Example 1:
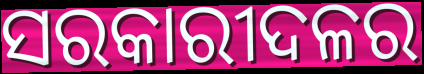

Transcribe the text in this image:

ସରକାରୀଦଳର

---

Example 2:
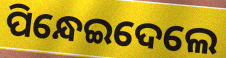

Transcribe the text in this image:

ପିନ୍ଧେଇଦେଲେ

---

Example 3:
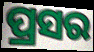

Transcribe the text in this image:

ପ୍ରସର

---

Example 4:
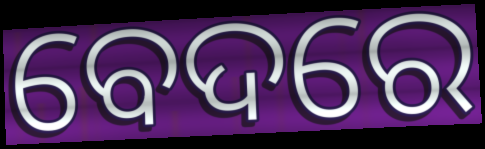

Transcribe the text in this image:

ବେଦରେ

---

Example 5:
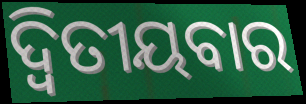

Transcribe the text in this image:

ଦ୍ୱିତୀୟବାର